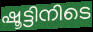
ഷൂട്ടിനിടെ